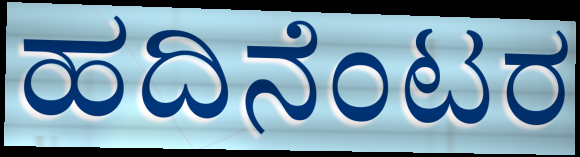
ಹದಿನೆಂಟರ